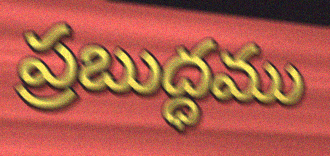
ప్రబుద్ధము